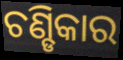
ଚଣ୍ଡିକାର